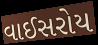
વાઈસરોય